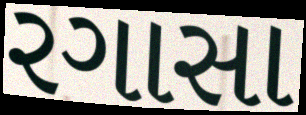
રગાસા